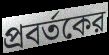
প্রবর্তকের